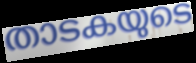
താടകയുടെ